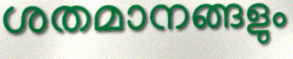
ശതമാനങ്ങളും